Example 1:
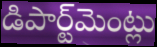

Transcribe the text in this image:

డిపార్ట్‌మెంట్లు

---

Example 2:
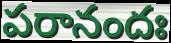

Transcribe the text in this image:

పరానందః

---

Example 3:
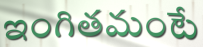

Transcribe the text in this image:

ఇంగితమంటే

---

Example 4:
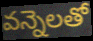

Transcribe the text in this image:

వన్నెలతో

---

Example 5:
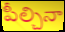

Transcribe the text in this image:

పీల్చినా